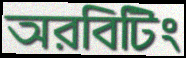
অরবিটিং